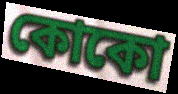
কোকো